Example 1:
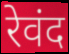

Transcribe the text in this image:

रेवंद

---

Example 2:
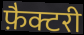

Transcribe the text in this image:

फ़ैक्टरी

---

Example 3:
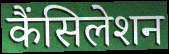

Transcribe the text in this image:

कैंसिलेशन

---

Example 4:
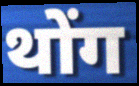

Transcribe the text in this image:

थोंग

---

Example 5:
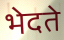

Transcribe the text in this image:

भेदते